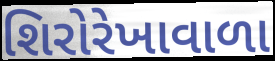
શિરોરેખાવાળા